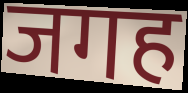
जगह